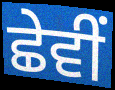
ਛੇਵੀਂ